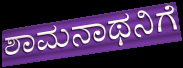
ಶಾಮನಾಥನಿಗೆ